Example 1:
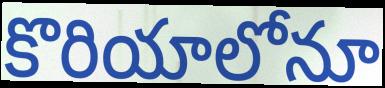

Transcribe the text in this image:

కొరియాలోనూ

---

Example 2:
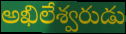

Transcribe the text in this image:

అఖిలేశ్వరుడు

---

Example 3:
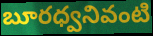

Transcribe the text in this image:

బూరధ్వనివంటి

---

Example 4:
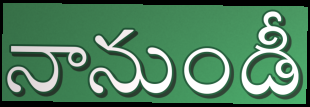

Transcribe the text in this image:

నానుండీ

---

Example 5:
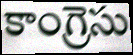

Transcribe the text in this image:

కాంగ్రెసు